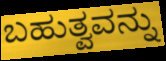
ಬಹುತ್ವವನ್ನು